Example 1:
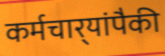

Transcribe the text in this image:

कर्मचार्‍यांपैकी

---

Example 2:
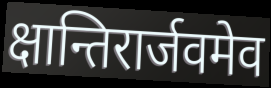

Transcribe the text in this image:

क्षान्तिरार्जवमेव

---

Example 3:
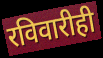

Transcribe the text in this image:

रविवारीही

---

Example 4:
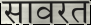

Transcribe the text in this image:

सावरत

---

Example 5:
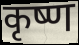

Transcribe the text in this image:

कृष्ण